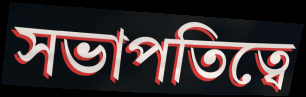
সভাপতিত্বে